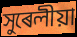
সুৰেলীয়া